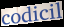
codicil